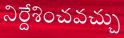
నిర్దేశించవచ్చు